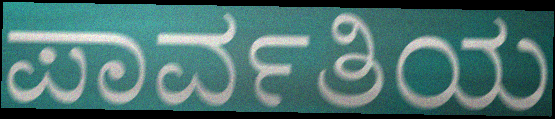
ಪಾರ್ವತಿಯ